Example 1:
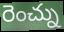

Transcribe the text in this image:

రెంచ్ను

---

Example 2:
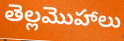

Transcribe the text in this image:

తెల్లమొహాలు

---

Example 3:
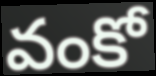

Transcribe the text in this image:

వంకో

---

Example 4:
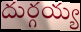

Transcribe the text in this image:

దుర్గయ్య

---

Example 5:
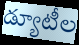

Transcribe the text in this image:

డ్యూటీల